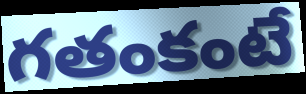
గతంకంటే